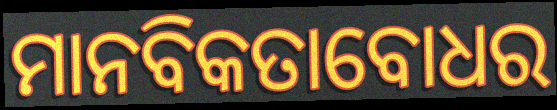
ମାନବିକତାବୋଧର